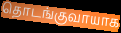
தொடங்குவாயாக